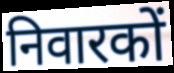
निवारकों